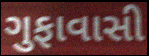
ગુફાવાસી